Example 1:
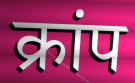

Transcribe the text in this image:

क्रांप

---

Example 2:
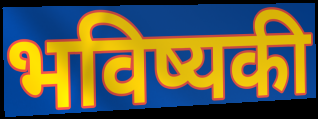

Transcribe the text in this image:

भविष्यकी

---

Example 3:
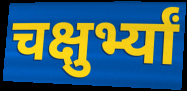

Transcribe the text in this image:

चक्षुर्भ्यां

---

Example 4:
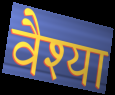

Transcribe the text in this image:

वैश्या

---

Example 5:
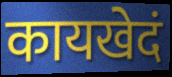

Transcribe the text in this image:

कायखेदं